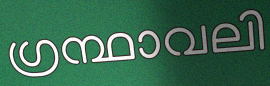
ഗ്രന്ഥാവലി